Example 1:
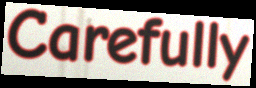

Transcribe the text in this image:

Carefully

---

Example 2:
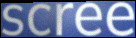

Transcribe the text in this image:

scree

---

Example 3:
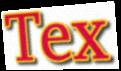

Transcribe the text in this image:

Tex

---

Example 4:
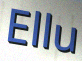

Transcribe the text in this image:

Ellu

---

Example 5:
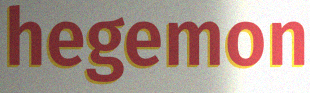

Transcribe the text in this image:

hegemon